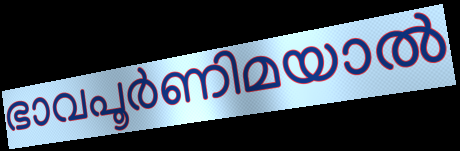
ഭാവപൂർണിമയാൽ